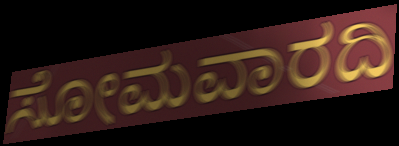
ಸೋಮವಾರದಿ